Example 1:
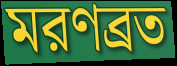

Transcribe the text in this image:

মরণব্রত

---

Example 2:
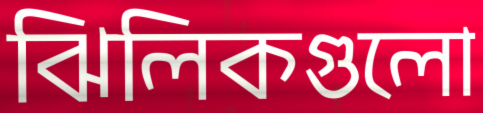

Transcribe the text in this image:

ঝিলিকগুলো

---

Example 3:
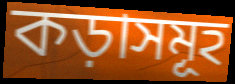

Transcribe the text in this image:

কড়াসমূহ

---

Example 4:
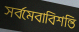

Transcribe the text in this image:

সর্বমেবাবিশন্তি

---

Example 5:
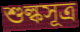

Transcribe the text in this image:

শুল্কসূত্র